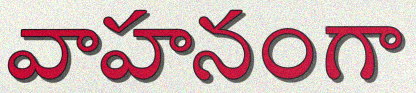
వాహనంగా